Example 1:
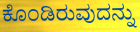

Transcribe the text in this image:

ಕೊಂಡಿರುವುದನ್ನು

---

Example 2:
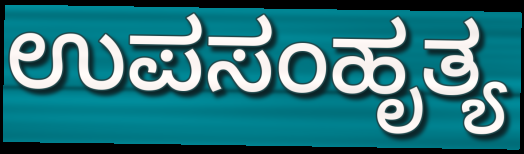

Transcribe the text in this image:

ಉಪಸಂಹೃತ್ಯ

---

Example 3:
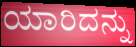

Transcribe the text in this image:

ಯಾರಿದನ್ನು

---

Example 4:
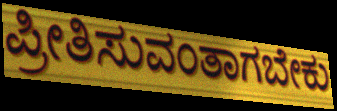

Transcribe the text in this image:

ಪ್ರೀತಿಸುವಂತಾಗಬೇಕು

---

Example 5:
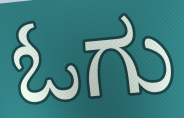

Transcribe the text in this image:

ಓಗು